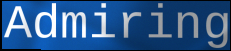
Admiring